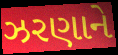
ઝરણાને